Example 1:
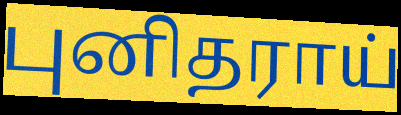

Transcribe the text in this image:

புனிதராய்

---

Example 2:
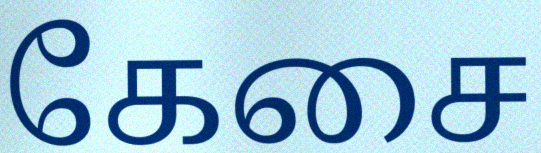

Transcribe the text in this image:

கேசை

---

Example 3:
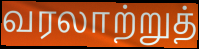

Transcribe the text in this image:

வரலாற்றுத்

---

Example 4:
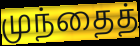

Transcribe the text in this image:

முந்தைத்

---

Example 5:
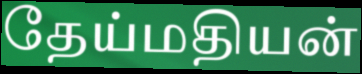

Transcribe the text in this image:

தேய்மதியன்